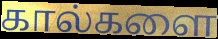
கால்களை